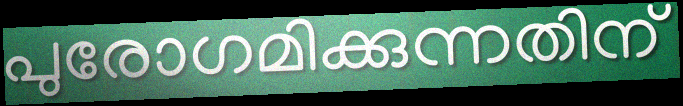
പുരോഗമിക്കുന്നതിന്